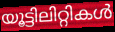
യൂട്ടിലിറ്റികൾ